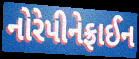
નોરેપીનેફ્રાઈન